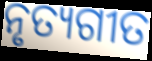
ନୃତ୍ୟଗୀତ